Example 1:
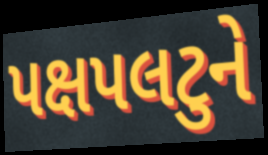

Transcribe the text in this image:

પક્ષપલટુને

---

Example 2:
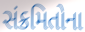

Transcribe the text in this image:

સંક્રમિતોના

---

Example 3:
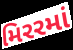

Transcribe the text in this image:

મિરરમાં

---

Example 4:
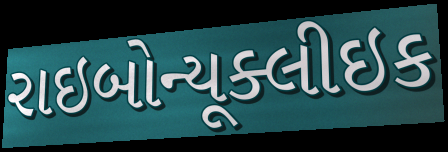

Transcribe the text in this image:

રાઇબોન્યૂક્લીઇક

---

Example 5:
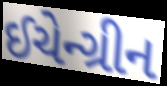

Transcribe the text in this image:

ઈચેન્ગ્રીન